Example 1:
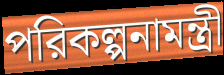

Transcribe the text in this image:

পরিকল্পনামন্ত্রী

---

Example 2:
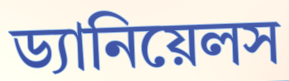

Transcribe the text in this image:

ড্যানিয়েলস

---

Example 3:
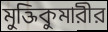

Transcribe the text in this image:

মুক্তিকুমারীর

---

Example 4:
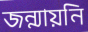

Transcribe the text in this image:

জন্মায়নি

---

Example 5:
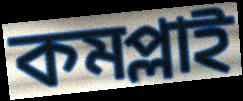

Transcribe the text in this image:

কমপ্লাই